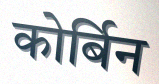
कोर्बिन